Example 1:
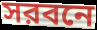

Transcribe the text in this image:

সরবনে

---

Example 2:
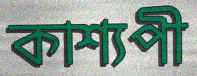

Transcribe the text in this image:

কাশ্যপী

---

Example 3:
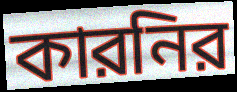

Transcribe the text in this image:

কারনির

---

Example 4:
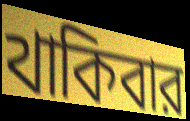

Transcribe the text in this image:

থাকিবার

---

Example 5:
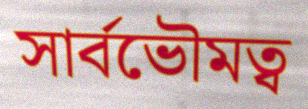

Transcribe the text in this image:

সার্বভৌমত্ব